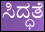
ಸಿದ್ಧತೆ